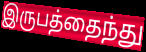
இருபத்தைந்து